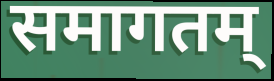
समागतम्